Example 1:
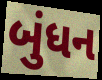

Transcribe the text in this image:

બુંધન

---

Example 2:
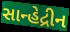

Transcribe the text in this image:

સાન્હેદ્રીન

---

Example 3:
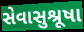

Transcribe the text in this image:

સેવાસુશ્રૂષા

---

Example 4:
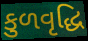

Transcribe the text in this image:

કુળવૃદ્ધિ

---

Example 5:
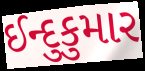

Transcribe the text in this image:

ઈન્દુકુમાર